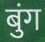
बुंग